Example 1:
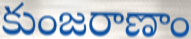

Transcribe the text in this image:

కుంజరాణాం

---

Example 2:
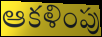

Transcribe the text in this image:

ఆకళింపు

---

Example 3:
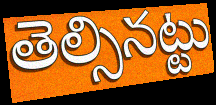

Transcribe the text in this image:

తెల్సినట్టు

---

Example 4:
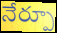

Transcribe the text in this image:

నేర్పూ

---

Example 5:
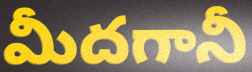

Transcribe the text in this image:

మీదగానీ